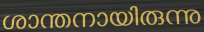
ശാന്തനായിരുന്നു